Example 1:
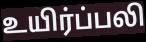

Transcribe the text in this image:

உயிர்ப்பலி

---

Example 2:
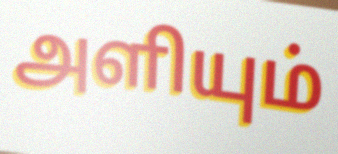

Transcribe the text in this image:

அளியும்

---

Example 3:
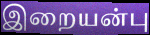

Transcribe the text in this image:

இறையன்பு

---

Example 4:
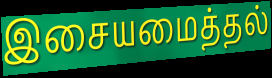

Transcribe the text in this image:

இசையமைத்தல்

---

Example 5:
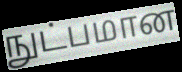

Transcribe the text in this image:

நுட்பமான